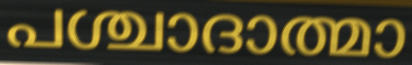
പശ്ചാദാത്മാ